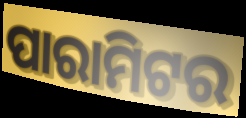
ପାରାମିଟର